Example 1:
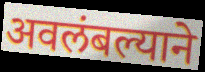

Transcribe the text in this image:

अवलंबल्याने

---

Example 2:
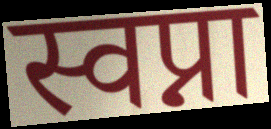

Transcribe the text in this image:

स्वप्ना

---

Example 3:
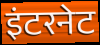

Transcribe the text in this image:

इंटरनेट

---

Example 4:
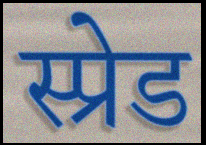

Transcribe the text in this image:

स्प्रेड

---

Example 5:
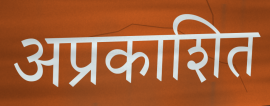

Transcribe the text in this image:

अप्रकाशित